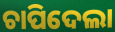
ଚାପିଦେଲା